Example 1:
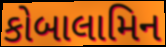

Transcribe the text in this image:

કોબાલામિન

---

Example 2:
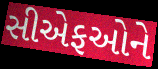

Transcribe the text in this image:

સીએફઓને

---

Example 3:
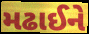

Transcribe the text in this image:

મઢાઈને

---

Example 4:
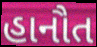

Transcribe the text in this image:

હાનૌત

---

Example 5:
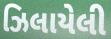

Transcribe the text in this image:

ઝિલાયેલી